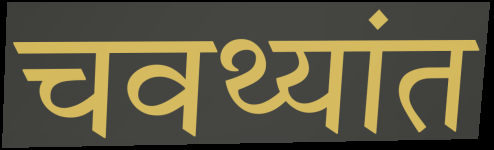
चवथ्यांत